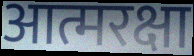
आत्मरक्षा